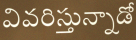
వివరిస్తున్నాడో